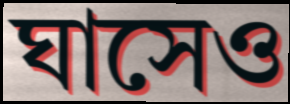
ঘাসেও